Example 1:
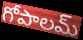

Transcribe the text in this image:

గోపాలమ్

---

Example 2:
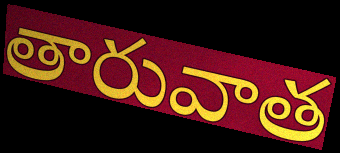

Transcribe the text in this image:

తారువాత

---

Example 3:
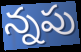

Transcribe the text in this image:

న్నపు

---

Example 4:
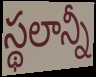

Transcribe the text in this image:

స్థలాన్నీ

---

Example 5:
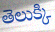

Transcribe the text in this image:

తెలుక్కి